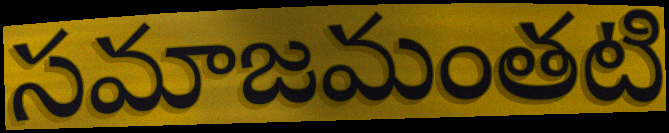
సమాజమంతటి